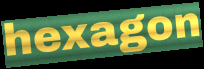
hexagon